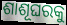
ଶାଶୂଘରକୁ